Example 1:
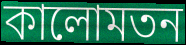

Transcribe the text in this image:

কালোমতন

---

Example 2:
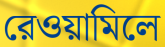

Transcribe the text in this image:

রেওয়ামিলে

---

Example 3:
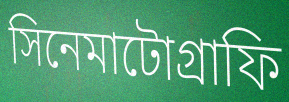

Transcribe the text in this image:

সিনেমাটোগ্রাফি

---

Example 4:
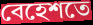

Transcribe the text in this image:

বেহেশতে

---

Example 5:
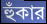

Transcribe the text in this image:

হুঁকার